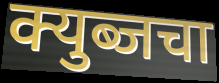
क्युब्जचा